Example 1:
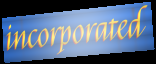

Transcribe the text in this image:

incorporated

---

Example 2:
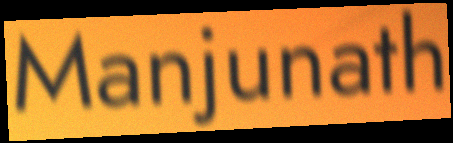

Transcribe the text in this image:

Manjunath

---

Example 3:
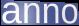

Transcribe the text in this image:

anno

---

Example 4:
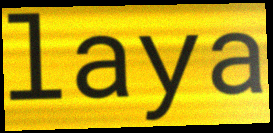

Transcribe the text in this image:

laya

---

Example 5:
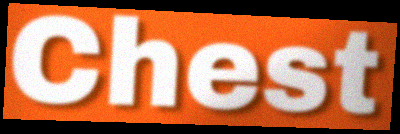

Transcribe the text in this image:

Chest